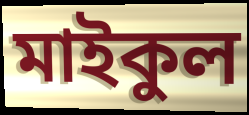
মাইকুল